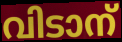
വിടാന്